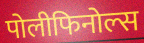
पोलीफिनोल्स